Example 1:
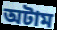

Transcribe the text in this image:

অটাম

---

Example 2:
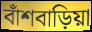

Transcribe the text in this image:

বাঁশবাড়িয়া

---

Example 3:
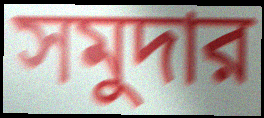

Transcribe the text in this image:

সমুদার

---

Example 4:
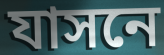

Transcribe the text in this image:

যাসনে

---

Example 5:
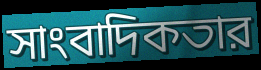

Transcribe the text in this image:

সাংবাদিকতার